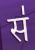
स॑